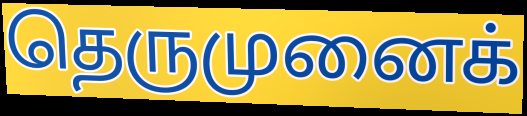
தெருமுனைக்